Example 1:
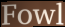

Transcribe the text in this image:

Fowl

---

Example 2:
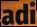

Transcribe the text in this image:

adi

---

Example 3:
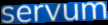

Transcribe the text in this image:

servum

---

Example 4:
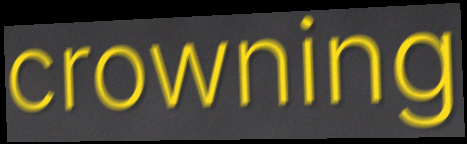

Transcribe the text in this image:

crowning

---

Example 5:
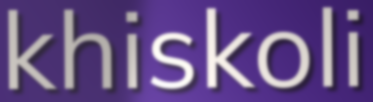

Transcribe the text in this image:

khiskoli